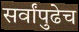
सर्वांपुढेच